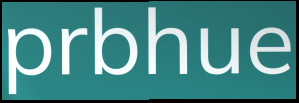
prbhue